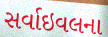
સર્વાઇવલના